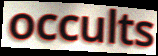
occults